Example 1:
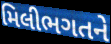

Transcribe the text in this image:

મિલીભગતને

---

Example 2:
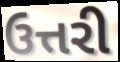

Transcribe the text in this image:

ઉત્તરી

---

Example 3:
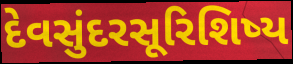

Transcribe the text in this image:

દેવસુંદરસૂરિશિષ્ય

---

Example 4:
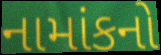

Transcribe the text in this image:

નામાંકનો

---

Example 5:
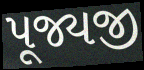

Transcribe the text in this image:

પૂજ્યજી